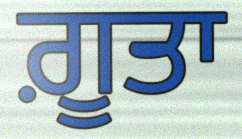
ਗ਼ੂਤਾ